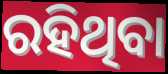
ରହିଥିବା